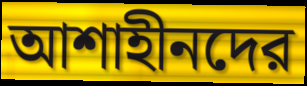
আশাহীনদের